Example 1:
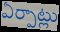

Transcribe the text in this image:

ఏర్పాట్లు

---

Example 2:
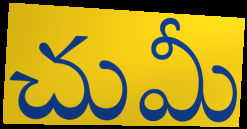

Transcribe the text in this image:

చుమీ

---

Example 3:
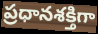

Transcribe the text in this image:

ప్రధానశక్తిగా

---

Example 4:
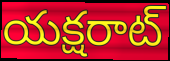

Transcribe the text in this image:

యక్షరాట్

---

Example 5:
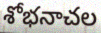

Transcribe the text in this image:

శోభనాచల